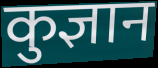
कुज्ञान